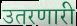
उतरणारी